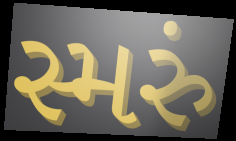
સ્મરું